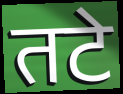
तटे